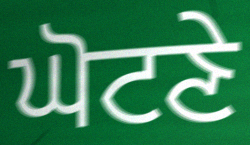
ਘੋਟਣੇ